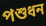
পশুধন